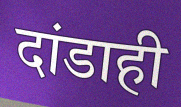
दांडाही